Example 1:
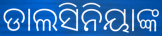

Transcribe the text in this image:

ଡାଲସିନିୟାଙ୍କ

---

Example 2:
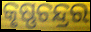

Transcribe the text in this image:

କୃଷ୍ଣଚନ୍ଦ୍ରର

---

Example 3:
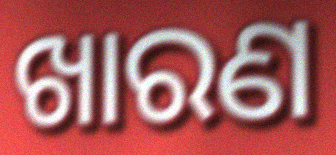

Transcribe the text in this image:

ଖାରଣ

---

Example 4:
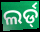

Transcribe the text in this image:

ଲର୍ଡ୍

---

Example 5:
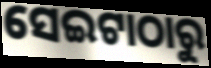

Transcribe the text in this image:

ସେଇଟାଠାରୁ